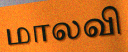
மாலவி